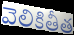
వెలికితీత